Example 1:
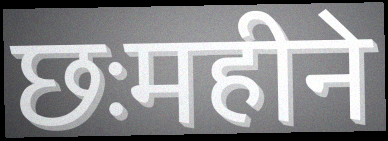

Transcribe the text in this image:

छःमहीने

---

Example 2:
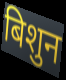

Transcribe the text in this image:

बिशुन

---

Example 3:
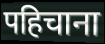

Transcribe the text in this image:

पहिचाना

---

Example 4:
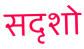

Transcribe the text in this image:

सदृशो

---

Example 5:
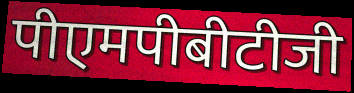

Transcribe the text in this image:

पीएमपीबीटीजी